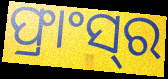
ଫ୍ରାଂସ୍‍ର